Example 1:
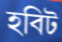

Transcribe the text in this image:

হবিট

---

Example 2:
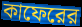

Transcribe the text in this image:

কাফেরের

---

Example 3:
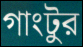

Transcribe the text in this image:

গাংটুর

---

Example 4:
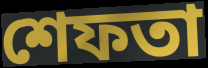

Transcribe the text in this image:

শেফতা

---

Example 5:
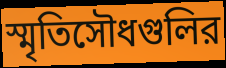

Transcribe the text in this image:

স্মৃতিসৌধগুলির